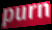
purn